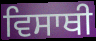
ਵਿਸਾਥੀ